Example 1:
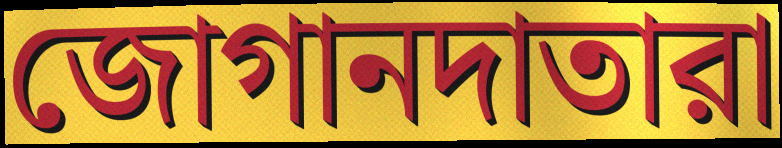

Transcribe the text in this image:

জোগানদাতারা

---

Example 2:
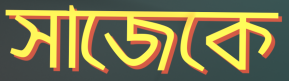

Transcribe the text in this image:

সাজেকে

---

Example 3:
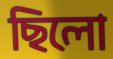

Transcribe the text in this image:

ছিলো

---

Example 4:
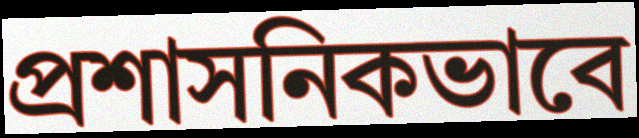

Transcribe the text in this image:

প্রশাসনিকভাবে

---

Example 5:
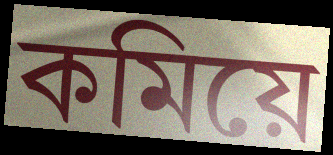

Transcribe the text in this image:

কমিয়ে